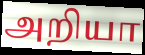
அறியா